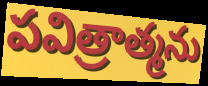
పవిత్రాత్మను